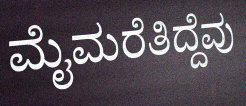
ಮೈಮರೆತಿದ್ದೆವು